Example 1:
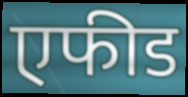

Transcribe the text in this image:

एफीड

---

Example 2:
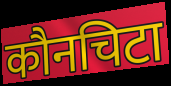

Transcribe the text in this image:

कौनचिटा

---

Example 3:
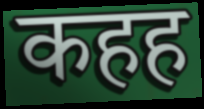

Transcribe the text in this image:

कहह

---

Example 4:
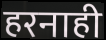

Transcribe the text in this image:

हरनाही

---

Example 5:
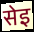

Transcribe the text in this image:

सेइ